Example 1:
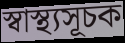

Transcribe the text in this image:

স্বাস্থ্যসূচক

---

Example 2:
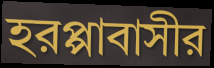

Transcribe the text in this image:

হরপ্পাবাসীর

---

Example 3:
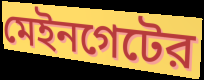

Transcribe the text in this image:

মেইনগেটের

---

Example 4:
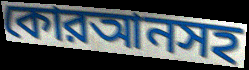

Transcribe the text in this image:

কোরআনসহ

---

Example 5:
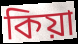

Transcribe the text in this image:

কিয়া